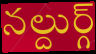
నల్దుర్గ్